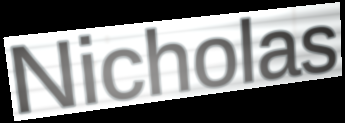
Nicholas